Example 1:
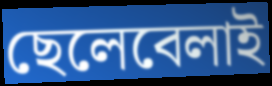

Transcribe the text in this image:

ছেলেবেলাই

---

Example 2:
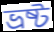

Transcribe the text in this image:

ভ্রষ্ট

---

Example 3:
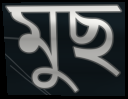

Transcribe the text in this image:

মুছ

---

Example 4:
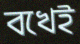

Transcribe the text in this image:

বখেই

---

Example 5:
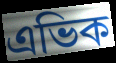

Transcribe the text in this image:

এভিক